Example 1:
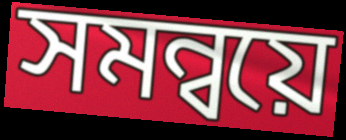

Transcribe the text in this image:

সমন্বয়ে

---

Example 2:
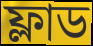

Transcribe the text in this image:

ফ্লাড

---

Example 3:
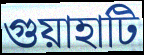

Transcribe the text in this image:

গুয়াহাটি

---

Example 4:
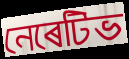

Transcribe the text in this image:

নেৰেটিভ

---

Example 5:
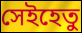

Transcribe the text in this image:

সেইহেতু